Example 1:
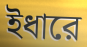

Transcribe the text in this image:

ইধারে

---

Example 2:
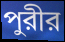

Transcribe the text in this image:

পুরীর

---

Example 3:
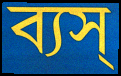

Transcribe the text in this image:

ব্যস্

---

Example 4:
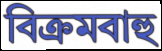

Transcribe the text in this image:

বিক্রমবাহু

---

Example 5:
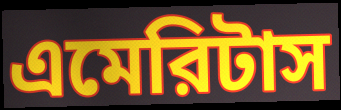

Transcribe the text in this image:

এমেরিটাস